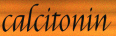
calcitonin